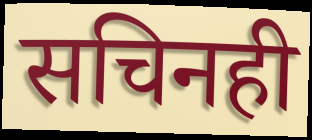
सचिनही